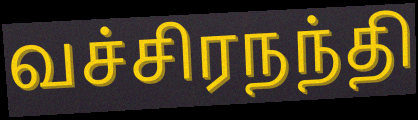
வச்சிரநந்தி